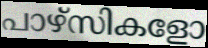
പാഴ്സികളോ